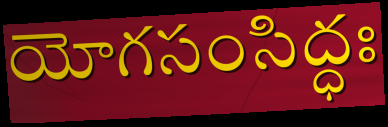
యోగసంసిద్ధః